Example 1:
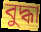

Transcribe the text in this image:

বুদ্ধা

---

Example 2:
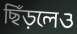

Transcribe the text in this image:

ছিঁড়লেও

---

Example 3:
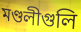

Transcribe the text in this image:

মণ্ডলীগুলি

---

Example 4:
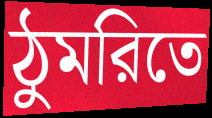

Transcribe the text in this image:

ঠুমরিতে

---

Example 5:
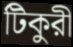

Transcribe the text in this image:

টিকুরী